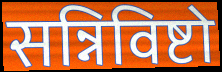
सन्निविष्टो